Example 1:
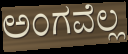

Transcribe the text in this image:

ಅಂಗವೆಲ್ಲ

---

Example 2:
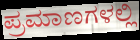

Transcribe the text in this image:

ಪ್ರಮಾಣಗಳಲ್ಲಿ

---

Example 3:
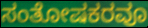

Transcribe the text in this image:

ಸಂತೋಷಕರವೂ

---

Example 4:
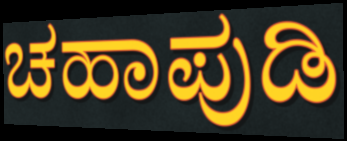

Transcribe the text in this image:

ಚಹಾಪುಡಿ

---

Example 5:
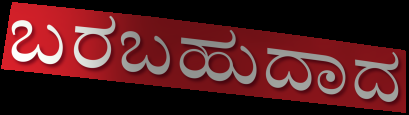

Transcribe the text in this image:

ಬರಬಹುದಾದ